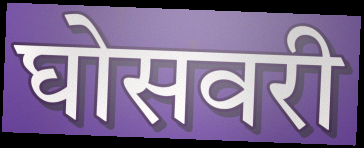
घोसवरी